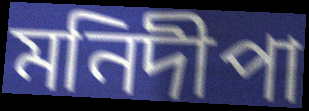
মনিদীপা